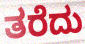
ತರೆದು